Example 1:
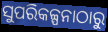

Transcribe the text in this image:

ସୁପରିକଳ୍ପନାଠାରୁ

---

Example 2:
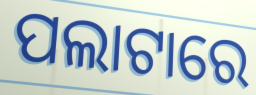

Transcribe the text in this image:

ପଲାଟାରେ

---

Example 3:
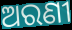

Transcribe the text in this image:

ଅରଣୀ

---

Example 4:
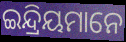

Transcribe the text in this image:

ଇନ୍ଦ୍ରିୟମାନେ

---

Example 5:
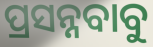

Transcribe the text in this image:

ପ୍ରସନ୍ନବାବୁ